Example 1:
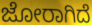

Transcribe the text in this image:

ಜೋರಾಗಿದೆ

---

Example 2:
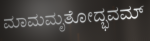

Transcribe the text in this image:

ಮಾಮಮೃತೋದ್ಭವಮ್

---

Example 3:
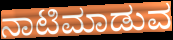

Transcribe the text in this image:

ನಾಟಿಮಾಡುವ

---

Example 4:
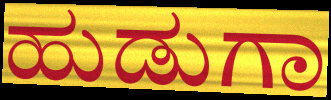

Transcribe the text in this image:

ಹುಡುಗಾ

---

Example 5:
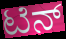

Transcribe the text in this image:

ಟೆನ್